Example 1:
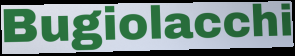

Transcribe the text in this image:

Bugiolacchi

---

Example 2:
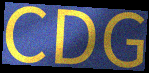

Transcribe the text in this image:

CDG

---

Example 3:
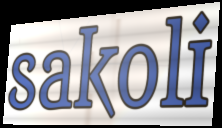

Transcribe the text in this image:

sakoli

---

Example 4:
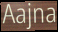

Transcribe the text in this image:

Aajna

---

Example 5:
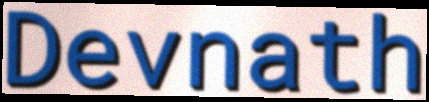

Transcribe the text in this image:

Devnath